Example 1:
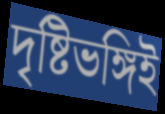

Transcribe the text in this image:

দৃষ্টিভঙ্গিই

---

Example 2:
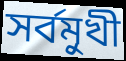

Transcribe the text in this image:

সর্বমুখী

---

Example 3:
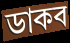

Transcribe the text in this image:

ডাকব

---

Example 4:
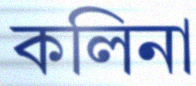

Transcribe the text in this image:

কলিনা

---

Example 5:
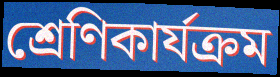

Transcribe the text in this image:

শ্রেণিকার্যক্রম